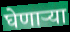
घेणार्‍या